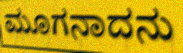
ಮೂಗನಾದನು